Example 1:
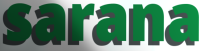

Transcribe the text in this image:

sarana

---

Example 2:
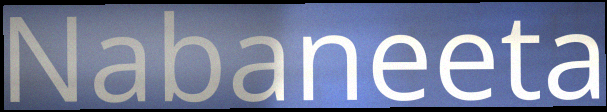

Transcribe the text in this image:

Nabaneeta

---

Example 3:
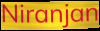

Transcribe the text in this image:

Niranjan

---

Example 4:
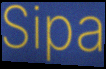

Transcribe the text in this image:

Sipa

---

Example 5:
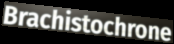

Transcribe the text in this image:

Brachistochrone